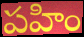
పహిం